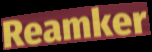
Reamker